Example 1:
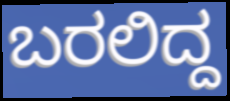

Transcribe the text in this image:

ಬರಲಿದ್ದ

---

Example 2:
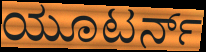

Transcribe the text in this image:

ಯೂಟರ್ನ್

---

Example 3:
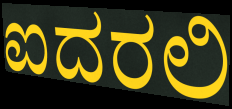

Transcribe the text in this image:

ಐದರಲಿ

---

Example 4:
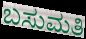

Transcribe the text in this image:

ಬಸುಮತಿ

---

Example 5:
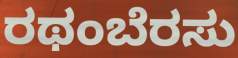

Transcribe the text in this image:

ರಥಂಬೆರಸು